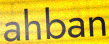
ahban